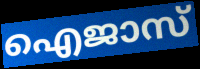
ഐജാസ്